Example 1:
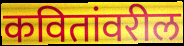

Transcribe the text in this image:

कवितांवरील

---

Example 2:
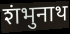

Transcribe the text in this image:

शंभुनाथ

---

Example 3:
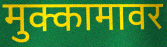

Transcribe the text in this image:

मुक्कामावर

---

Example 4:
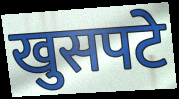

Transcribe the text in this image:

खुसपटे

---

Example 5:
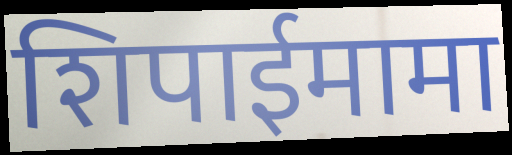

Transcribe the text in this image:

शिपाईमामा